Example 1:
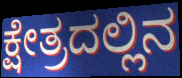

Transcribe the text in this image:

ಕ್ಷೇತ್ರದಲ್ಲಿನ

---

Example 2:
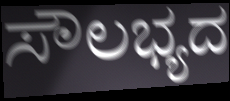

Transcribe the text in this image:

ಸೌಲಭ್ಯದ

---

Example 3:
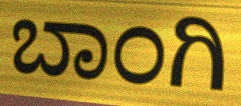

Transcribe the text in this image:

ಬಾಂಗಿ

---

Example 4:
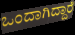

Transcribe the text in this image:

ಒಂದಾಗಿದ್ದಾರೆ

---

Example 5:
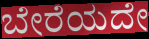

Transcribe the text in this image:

ಬೇರೆಯದೇ